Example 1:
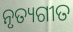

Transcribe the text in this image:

ନୃତ୍ୟଗୀତ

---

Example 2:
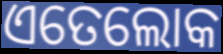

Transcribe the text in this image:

ଏତେଲୋକ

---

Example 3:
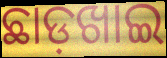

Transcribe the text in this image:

ଛାଡ଼ଖାଇ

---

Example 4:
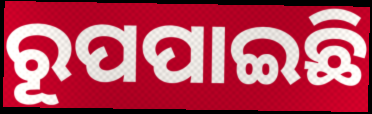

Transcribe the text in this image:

ରୂପପାଇଛି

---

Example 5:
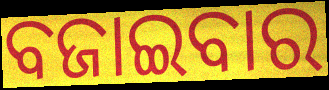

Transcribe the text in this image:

ବଜାଇବାର